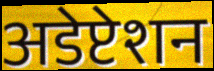
अडेप्टेशन